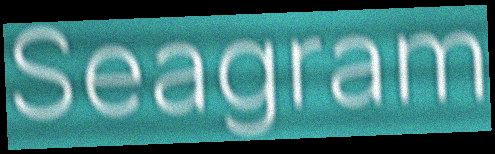
Seagram